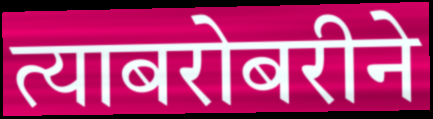
त्याबरोबरीने